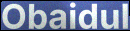
Obaidul